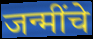
जन्मींचे